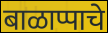
बाळाप्पाचे